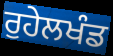
ਰੁਹੇਲਖੰਡ